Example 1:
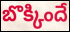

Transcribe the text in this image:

బొక్కిందే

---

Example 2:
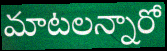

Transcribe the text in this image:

మాటలన్నారో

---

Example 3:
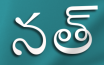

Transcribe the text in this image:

నత్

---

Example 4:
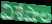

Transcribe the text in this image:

విశేషాల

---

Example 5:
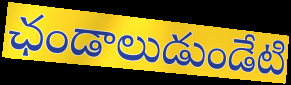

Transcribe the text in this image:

ఛండాలుడుండేటి